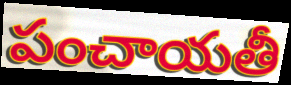
పంచాయతీ